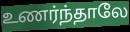
உணர்ந்தாலே